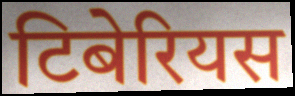
टिबेरियस